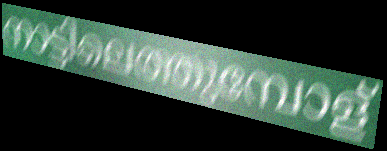
നാട്ടിലെത്തുമ്പോള്